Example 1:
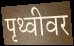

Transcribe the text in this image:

पृथ्वीवर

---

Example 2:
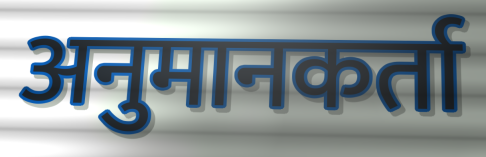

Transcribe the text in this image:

अनुमानकर्ता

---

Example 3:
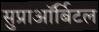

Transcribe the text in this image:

सुप्राऑर्बिटल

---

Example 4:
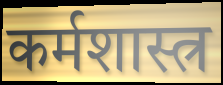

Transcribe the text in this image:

कर्मशास्त्र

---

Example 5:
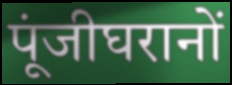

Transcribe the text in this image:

पूंजीघरानों